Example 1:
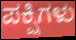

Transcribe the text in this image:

ಪಕ್ಷಿಗಳು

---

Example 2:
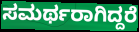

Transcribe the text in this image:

ಸಮರ್ಥರಾಗಿದ್ದರೆ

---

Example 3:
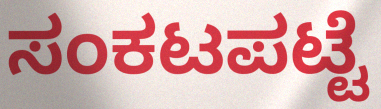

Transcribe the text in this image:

ಸಂಕಟಪಟ್ಟೆ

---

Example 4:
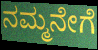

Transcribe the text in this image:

ನಮ್ಮನೇಗೆ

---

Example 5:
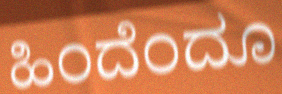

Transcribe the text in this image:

ಹಿಂದೆಂದೂ